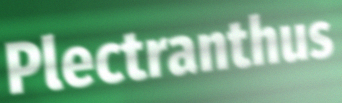
Plectranthus